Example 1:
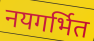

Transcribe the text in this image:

नयगर्भित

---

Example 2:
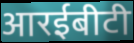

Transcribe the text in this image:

आरईबीटी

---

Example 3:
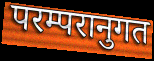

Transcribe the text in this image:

परम्परानुगत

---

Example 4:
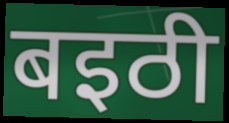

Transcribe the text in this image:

बइठी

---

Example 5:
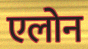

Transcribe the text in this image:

एलोन